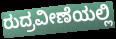
ರುದ್ರವೀಣೆಯಲ್ಲಿ